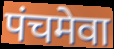
पंचमेवा